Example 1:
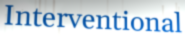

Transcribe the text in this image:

Interventional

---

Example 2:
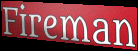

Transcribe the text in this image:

Fireman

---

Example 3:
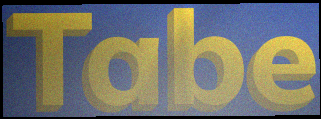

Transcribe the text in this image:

Tabe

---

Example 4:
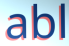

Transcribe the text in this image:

abl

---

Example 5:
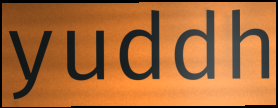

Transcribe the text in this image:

yuddh